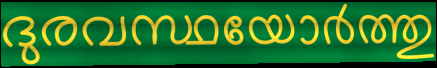
ദുരവസ്ഥയോർത്തു